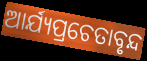
ଆର୍ଯ୍ୟପ୍ରଚେତାବୃନ୍ଦ